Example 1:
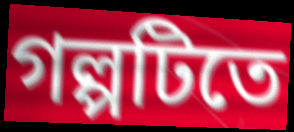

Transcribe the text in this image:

গল্পটিতে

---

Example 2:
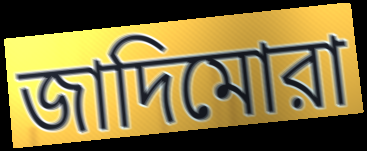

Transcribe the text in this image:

জাদিমোরা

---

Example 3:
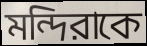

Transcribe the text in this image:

মন্দিরাকে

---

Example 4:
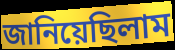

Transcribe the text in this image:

জানিয়েছিলাম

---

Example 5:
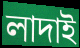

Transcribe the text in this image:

লাদাই